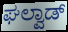
ಘಲ್ವಾಡ್